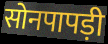
सोनपापड़ी